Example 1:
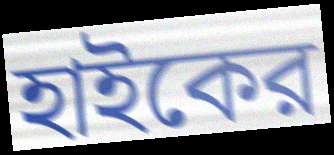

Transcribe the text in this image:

হাইকের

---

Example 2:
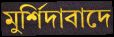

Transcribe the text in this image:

মুর্শিদাবাদে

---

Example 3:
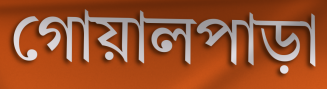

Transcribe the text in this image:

গোয়ালপাড়া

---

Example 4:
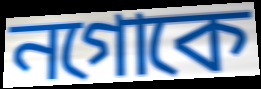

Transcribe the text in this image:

নগোকে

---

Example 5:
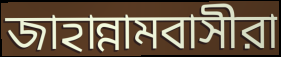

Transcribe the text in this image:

জাহান্নামবাসীরা